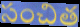
సంచిత